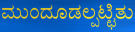
ಮುಂದೂಡಲ್ಪಟ್ಟಿತು